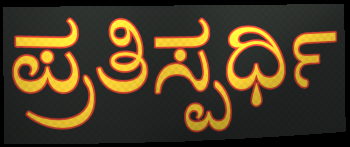
ಪ್ರತಿಸ್ಪರ್ಧಿ